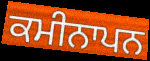
ਕਮੀਨਾਪਨ